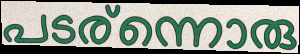
പടര്ന്നൊരു